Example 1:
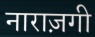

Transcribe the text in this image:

नाराज़गी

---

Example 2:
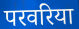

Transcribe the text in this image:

परवरिया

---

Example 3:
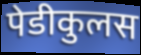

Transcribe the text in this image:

पेडीकुलस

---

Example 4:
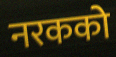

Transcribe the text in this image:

नरकको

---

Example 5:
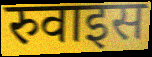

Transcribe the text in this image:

रुवाइस